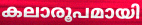
കലാരൂപമായി